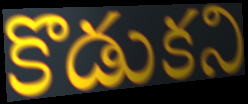
కొడుకని